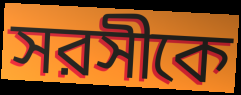
সরসীকে